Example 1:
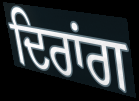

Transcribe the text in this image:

ਦਿਰਾਂਗ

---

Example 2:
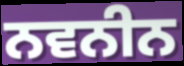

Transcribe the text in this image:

ਨਵਨੀਨ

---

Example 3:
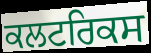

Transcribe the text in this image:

ਕਲਟਰਿਕਸ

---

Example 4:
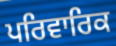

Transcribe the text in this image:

ਪਰਿਵਾਰਿਕ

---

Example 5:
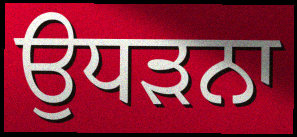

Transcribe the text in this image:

ਉਧੜਨਾ